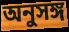
অনুসঙ্গ